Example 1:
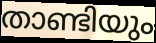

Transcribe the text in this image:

താണ്ടിയും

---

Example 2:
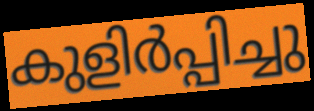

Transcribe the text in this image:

കുളിർപ്പിച്ചു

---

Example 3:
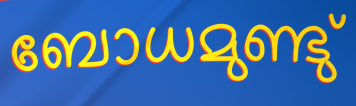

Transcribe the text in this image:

ബോധമുണ്ടു്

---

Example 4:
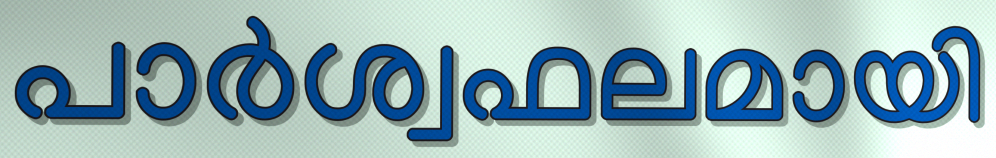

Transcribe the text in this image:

പാർശ്വഫലമായി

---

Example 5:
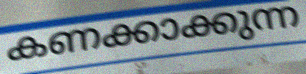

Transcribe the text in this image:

കണക്കാക്കുന്ന